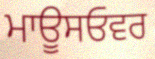
ਮਾਊਸਓਵਰ